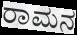
ರಾಮನ